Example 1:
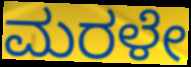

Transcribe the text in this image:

ಮರಳೇ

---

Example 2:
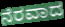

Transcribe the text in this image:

ನೆರವಾದ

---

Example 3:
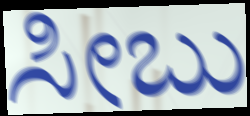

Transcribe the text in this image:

ಸೀಬು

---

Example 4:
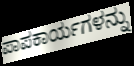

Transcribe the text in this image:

ಪಾಪಕಾರ್ಯಗಳನ್ನು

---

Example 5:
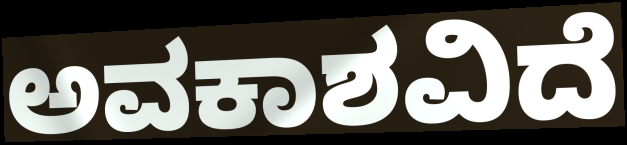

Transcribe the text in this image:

ಅವಕಾಶವಿದೆ